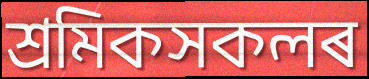
শ্ৰমিকসকলৰ